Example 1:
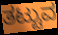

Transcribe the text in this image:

ತಟ್ಟುವ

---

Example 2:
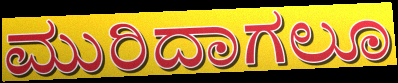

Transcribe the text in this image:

ಮುರಿದಾಗಲೂ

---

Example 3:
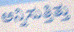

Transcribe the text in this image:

ಅನ್ನಿಸುತ್ತಿತ್ತು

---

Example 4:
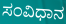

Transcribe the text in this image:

ಸಂವಿಧಾನ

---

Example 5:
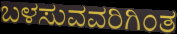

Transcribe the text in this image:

ಬಳಸುವವರಿಗಿಂತ